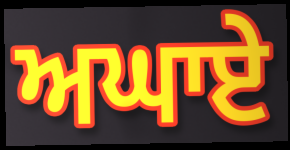
ਅਘਾਏ